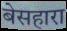
बेसहारा